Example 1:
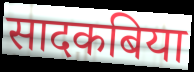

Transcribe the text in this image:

सादकबिया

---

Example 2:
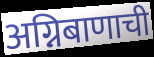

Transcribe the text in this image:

अग्निबाणाची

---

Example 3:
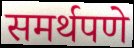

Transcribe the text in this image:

समर्थपणे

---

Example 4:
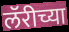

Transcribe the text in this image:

लॅरीच्या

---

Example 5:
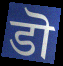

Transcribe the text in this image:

डॊ